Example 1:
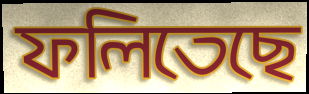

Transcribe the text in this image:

ফলিতেছে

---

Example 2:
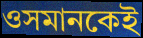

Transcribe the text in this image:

ওসমানকেই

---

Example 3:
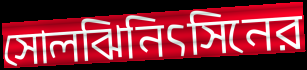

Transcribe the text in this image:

সোলঝিনিৎসিনের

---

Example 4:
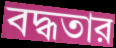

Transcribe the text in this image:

বদ্ধতার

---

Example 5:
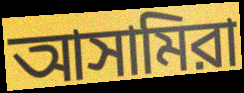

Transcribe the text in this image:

আসামিরা